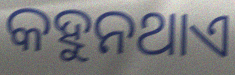
କହୁନଥାଏ